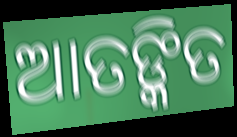
ଆତଙ୍କିତ